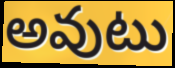
అవుటు